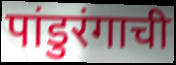
पांडुरंगाची